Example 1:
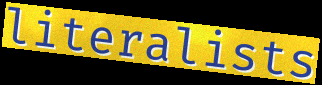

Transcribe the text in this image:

literalists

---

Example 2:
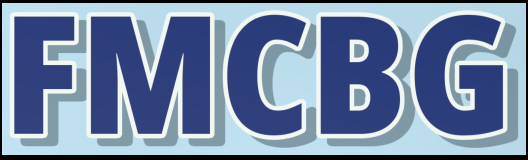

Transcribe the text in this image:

FMCBG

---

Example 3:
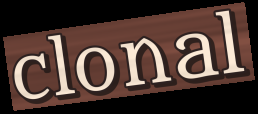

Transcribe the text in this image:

clonal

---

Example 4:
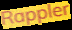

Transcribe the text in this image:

Rappler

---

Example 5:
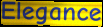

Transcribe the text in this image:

Elegance